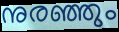
നുരഞ്ഞും